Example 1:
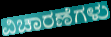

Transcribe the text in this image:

ವಿಚಾರಣೆಗಳು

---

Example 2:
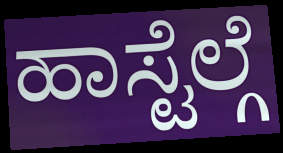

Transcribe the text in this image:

ಹಾಸ್ಟೆಲ್ಗೆ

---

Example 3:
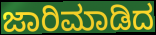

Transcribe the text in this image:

ಜಾರಿಮಾಡಿದ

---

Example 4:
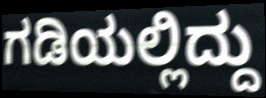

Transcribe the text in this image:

ಗಡಿಯಲ್ಲಿದ್ದು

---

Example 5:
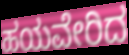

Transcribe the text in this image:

ಹಯವೇರಿದ